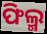
ଫିଲ୍ମ